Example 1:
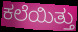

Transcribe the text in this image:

ಕಲೆಯಿತ್ತು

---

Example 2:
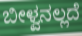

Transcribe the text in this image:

ಬೀಳ್ವನಲ್ಲದೆ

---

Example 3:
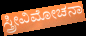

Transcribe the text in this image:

ಸ್ತ್ರೀವಿಮೋಚನಾ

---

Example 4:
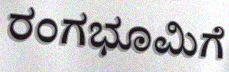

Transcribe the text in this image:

ರಂಗಭೂಮಿಗೆ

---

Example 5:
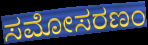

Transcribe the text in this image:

ಸಮೋಸರಣಂ